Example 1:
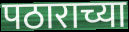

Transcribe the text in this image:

पठाराच्या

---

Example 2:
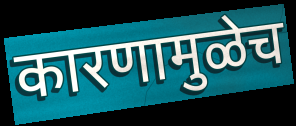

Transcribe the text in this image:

कारणामुळेच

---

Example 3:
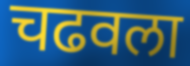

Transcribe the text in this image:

चढवला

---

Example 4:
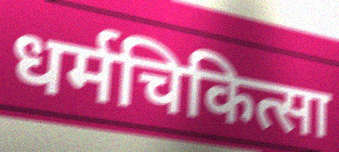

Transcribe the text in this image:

धर्मचिकित्सा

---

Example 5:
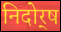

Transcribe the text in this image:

निदोर्ष